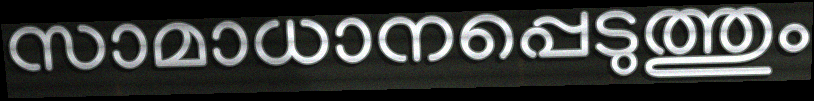
സാമാധാനപ്പെടുത്തും